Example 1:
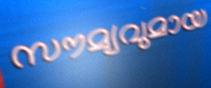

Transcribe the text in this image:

സൗമ്യവുമായ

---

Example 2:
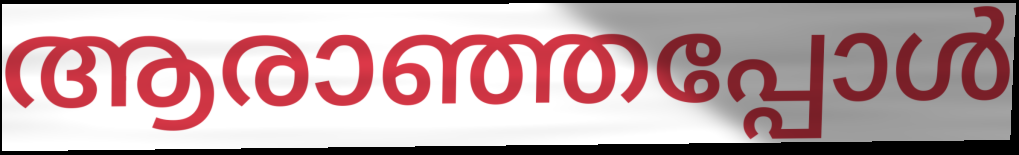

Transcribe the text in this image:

ആരാഞ്ഞപ്പോൾ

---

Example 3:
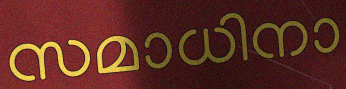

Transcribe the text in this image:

സമാധിനാ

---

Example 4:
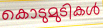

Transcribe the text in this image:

കൊടുമുടികൾ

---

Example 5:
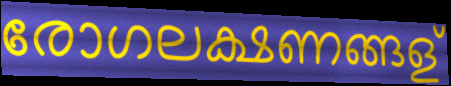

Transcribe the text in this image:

രോഗലക്ഷണങ്ങള്